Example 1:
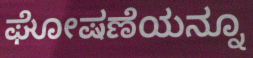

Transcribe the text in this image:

ಘೋಷಣೆಯನ್ನೂ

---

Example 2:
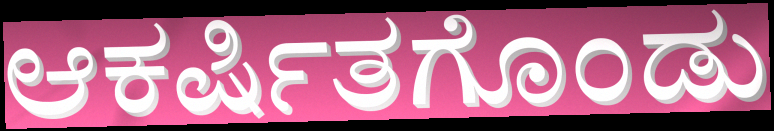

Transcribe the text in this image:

ಆಕರ್ಷಿತಗೊಂಡು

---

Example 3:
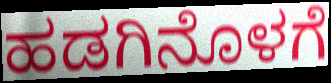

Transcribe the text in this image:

ಹಡಗಿನೊಳಗೆ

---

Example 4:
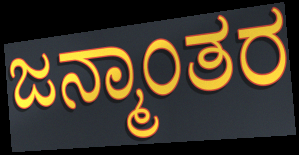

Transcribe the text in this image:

ಜನ್ಮಾಂತರ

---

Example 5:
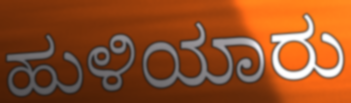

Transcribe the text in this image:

ಹುಳಿಯಾರು